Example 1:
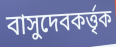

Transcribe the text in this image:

বাসুদেবকর্ত্তৃক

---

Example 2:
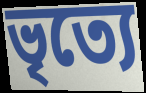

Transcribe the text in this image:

ভৃত্যে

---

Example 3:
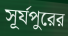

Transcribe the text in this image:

সূর্যপুরের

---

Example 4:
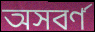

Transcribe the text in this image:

অসবর্ণ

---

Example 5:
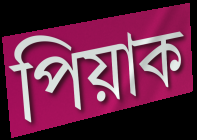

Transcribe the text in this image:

পিয়াক